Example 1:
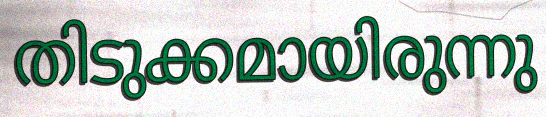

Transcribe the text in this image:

തിടുക്കമായിരുന്നു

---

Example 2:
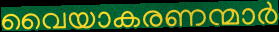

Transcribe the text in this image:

വൈയാകരണന്മാർ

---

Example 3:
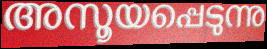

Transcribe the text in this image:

അസൂയപ്പെടുന്നു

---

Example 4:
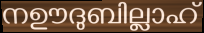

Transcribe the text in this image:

നഊദുബില്ലാഹ്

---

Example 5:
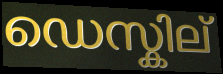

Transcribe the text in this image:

ഡെസ്കില്